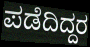
ಪಡೆದಿದ್ದರ